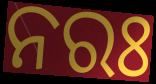
ନରଃ